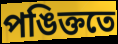
পঙিক্ততে